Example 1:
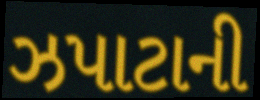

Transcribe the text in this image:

ઝપાટાની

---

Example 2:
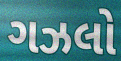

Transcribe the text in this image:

ગઝલો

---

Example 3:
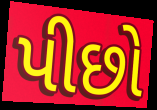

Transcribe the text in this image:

પીછો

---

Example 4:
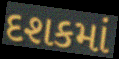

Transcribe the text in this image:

દશકમાં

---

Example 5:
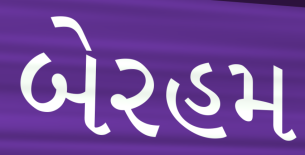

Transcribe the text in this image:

બેરહમ